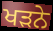
ਖੜਨੇ